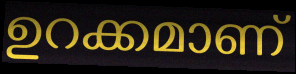
ഉറക്കമാണ്